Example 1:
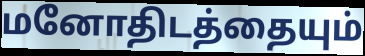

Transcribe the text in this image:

மனோதிடத்தையும்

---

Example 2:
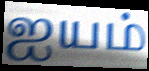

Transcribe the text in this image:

ஐயம்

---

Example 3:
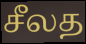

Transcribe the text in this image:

சீலத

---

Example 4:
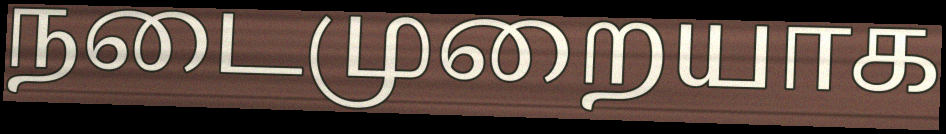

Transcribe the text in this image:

நடைமுறையாக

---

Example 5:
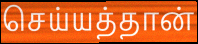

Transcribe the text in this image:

செய்யத்தான்